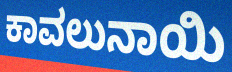
ಕಾವಲುನಾಯಿ